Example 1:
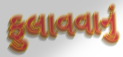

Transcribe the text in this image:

ફુલાવવાનું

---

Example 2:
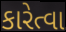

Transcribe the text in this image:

કારેત્વા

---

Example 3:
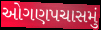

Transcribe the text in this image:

ઓગણપચાસમું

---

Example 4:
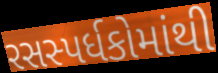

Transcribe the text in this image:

રસસ્પર્ધકોમાંથી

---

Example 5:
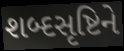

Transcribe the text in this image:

શબ્દસૃષ્ટિને